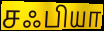
சஃபியா